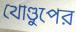
থোণ্ডুপের